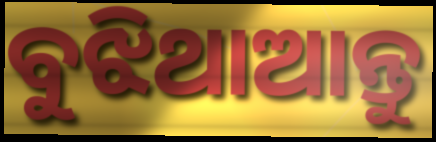
ବୁଝିଥାଆନ୍ତୁ